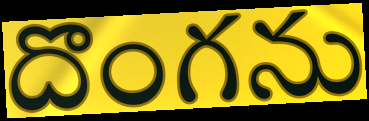
దొంగను